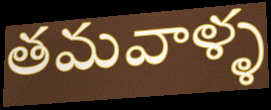
తమవాళ్ళ